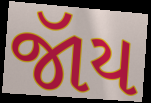
જૉય